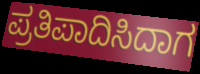
ಪ್ರತಿಪಾದಿಸಿದಾಗ